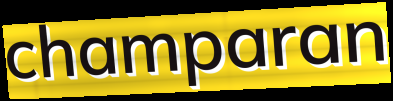
champaran